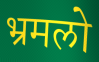
भ्रमलो